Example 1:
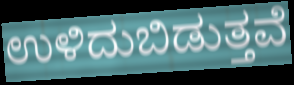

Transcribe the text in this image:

ಉಳಿದುಬಿಡುತ್ತವೆ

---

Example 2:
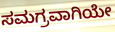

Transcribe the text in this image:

ಸಮಗ್ರವಾಗಿಯೇ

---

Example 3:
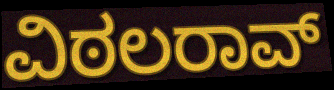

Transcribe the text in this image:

ವಿಠಲರಾವ್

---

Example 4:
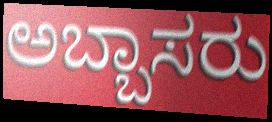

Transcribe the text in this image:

ಅಬ್ಬಾಸರು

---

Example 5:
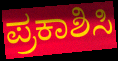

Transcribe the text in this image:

ಪ್ರಕಾಶಿಸಿ